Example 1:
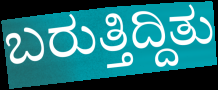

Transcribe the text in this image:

ಬರುತ್ತಿದ್ದಿತು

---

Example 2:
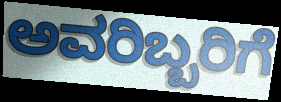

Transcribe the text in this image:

ಅವರಿಬ್ಬರಿಗೆ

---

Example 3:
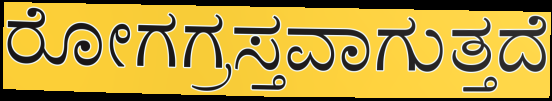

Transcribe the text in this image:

ರೋಗಗ್ರಸ್ತವಾಗುತ್ತದೆ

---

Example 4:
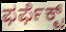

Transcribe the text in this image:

ಫರ್ಫೆಕ್ಟ್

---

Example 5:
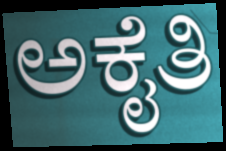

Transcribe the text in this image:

ಅಕೈತಿ